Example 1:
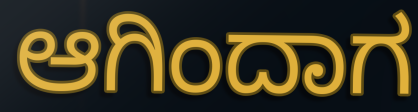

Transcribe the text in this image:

ಆಗಿಂದಾಗ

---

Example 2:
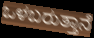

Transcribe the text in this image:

ಒಳಬರುತ್ತಾನೆ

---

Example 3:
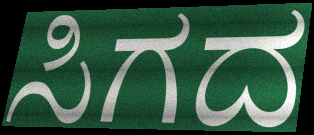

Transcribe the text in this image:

ಸಿಗದ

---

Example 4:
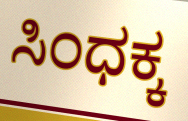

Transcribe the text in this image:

ಸಿಂಧಕ್ಕ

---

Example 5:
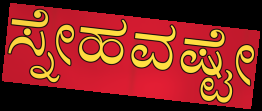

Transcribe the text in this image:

ಸ್ನೇಹವಷ್ಟೇ